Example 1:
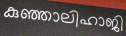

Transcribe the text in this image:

കുഞ്ഞാലിഹാജി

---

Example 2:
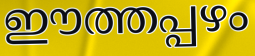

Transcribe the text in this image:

ഈത്തപ്പഴം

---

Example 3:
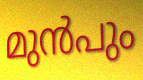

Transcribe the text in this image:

മുൻപും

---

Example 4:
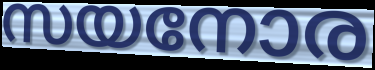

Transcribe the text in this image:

സയനോര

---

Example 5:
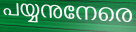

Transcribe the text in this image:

പയ്യനുനേരെ